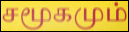
சமூகமும்